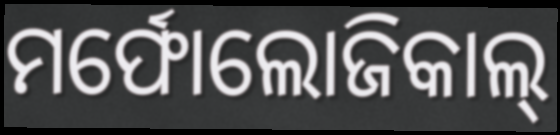
ମର୍ଫୋଲୋଜିକାଲ୍